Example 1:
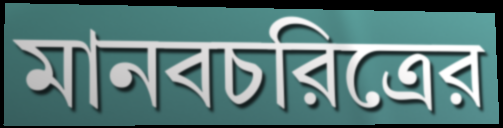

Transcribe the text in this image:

মানবচরিত্রের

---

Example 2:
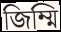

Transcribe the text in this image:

জিম্মি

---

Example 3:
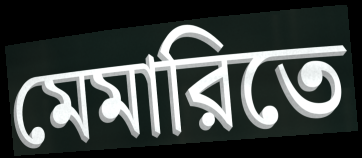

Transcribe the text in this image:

মেমারিতে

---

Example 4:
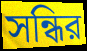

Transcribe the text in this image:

সন্ধির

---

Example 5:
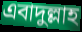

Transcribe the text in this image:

এবাদুল্লাহ